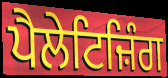
ਪੈਲੇਟਿਜ਼ਿੰਗ